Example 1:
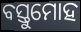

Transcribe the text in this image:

ବସ୍ତୁମୋହ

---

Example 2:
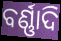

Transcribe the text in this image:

ବର୍ଣ୍ଣାଦି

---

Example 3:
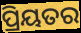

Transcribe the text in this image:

ପ୍ରିୟତର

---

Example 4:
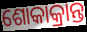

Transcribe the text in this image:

ଶୋକାକ୍ରାନ୍ତ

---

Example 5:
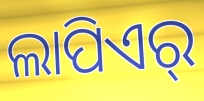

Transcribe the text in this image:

ଲାପିଏର୍